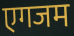
एगजम